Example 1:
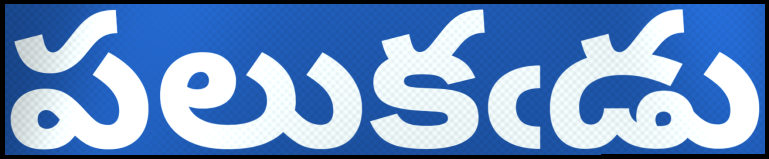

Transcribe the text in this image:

పలుకఁడు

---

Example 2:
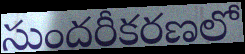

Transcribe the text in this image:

సుందరీకరణలో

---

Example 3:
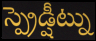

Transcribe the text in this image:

స్ప్రెడ్షీట్ను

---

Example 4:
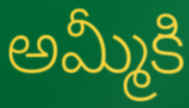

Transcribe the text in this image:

అమ్మీకి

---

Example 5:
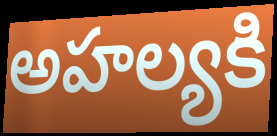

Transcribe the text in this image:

అహల్యకి